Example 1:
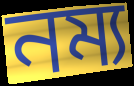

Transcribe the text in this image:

নম্য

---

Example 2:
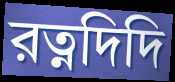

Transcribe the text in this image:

রত্নদিদি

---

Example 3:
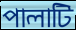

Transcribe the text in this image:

পালাটি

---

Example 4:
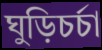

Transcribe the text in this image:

ঘুড়িচর্চা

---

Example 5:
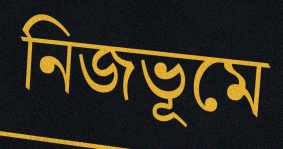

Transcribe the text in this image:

নিজভূমে